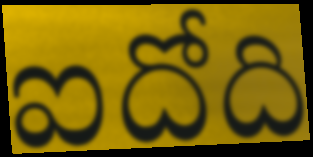
ఐదోది